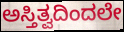
ಅಸ್ತಿತ್ವದಿಂದಲೇ